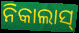
ନିକାଲାସ୍